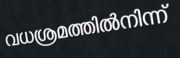
വധശ്രമത്തിൽനിന്ന്